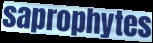
saprophytes